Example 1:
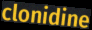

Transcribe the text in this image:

clonidine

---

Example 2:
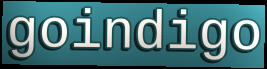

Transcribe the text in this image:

goindigo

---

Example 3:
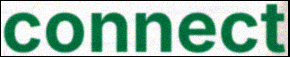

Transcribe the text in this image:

connect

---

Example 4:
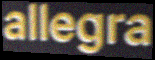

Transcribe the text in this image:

allegra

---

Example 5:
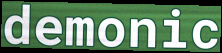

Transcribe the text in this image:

demonic